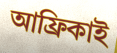
আফ্ৰিকাই